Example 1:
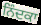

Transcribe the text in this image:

ਨਿੰਦਕਾ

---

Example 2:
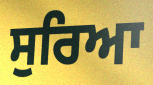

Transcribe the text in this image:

ਸੁਰਿਆ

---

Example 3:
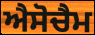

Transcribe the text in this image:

ਐਸੋਚੈਮ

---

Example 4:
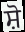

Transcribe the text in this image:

ਸ਼ੋ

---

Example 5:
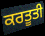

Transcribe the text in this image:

ਕਰਤੂਤੀ